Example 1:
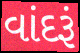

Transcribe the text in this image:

વાંદરૂં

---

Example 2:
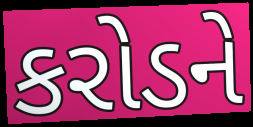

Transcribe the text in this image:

કરોડને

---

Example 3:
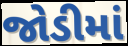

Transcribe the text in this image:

જોડીમાં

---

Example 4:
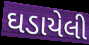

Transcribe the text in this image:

ઘડાયેલી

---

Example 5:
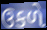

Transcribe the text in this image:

ઉકળે